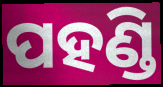
ପହଣ୍ଡି